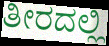
ತೀರದಲ್ಲಿ